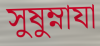
সুষুম্নাযা